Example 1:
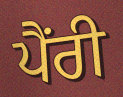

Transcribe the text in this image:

ਪੈਂਰੀ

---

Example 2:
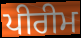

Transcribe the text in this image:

ਪੀਰੀਮ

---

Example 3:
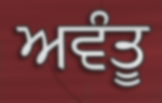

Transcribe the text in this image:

ਅਵੰਤੂ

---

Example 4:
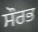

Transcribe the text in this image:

ਸੌਰਭ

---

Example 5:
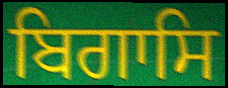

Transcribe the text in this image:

ਬਿਗਾਸਿ